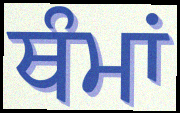
ਥੰਮਾਂ